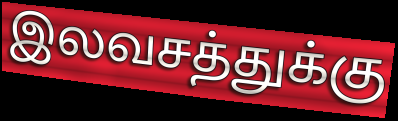
இலவசத்துக்கு